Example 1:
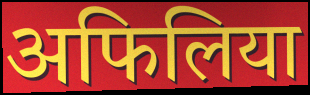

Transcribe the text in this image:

अफिलिया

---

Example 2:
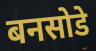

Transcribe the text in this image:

बनसोडे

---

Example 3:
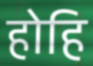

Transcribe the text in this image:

होहि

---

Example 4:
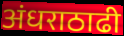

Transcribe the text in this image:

अंधराठाढी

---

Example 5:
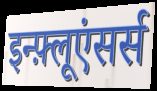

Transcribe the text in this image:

इन्फ़्लूएंसर्स